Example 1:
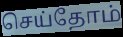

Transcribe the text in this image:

செய்தோம்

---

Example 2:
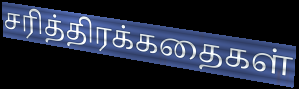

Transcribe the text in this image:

சரித்திரக்கதைகள்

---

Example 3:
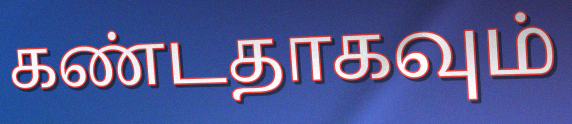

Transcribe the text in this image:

கண்டதாகவும்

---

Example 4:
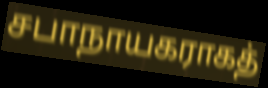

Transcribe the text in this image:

சபாநாயகராகத்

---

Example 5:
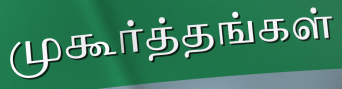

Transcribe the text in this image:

முகூர்த்தங்கள்